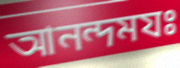
আনন্দমযঃ